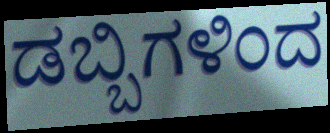
ಡಬ್ಬಿಗಳಿಂದ